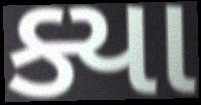
ક્યા